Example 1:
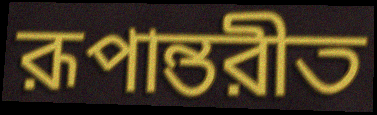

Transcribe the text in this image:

রূপান্তরীত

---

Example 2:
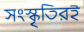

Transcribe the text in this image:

সংস্কৃতিরই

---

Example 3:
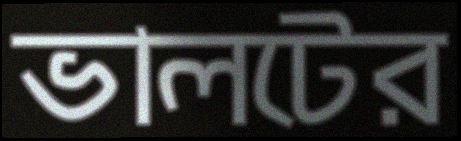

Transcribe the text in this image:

ভালটের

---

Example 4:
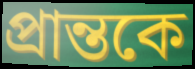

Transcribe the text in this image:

প্রান্তকে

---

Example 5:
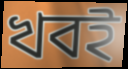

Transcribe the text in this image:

খবই